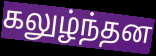
கலுழ்ந்தன